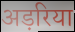
अड़रिया